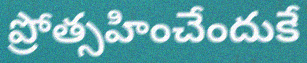
ప్రోత్సహించేందుకే